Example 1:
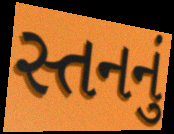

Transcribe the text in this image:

સ્તનનું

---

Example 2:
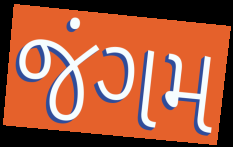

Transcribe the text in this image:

જંગમ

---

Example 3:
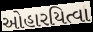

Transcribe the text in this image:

ઓહારયિત્વા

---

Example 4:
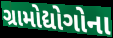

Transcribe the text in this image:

ગ્રામોદ્યોગોના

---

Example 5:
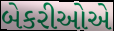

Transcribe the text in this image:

બેકરીઓએ